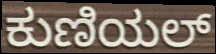
ಕುಣಿಯಲ್